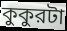
কুকুরটা